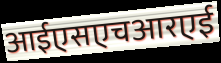
आईएसएचआरएई